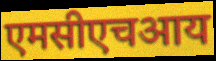
एमसीएचआय